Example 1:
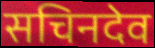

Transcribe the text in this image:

सचिनदेव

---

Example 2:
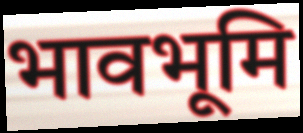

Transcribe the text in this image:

भावभूमि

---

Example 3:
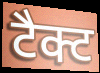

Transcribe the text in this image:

टैक्ट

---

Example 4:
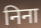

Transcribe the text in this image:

निना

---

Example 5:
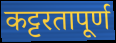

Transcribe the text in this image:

कट्टरतापूर्ण